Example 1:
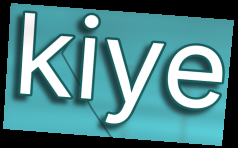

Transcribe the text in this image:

kiye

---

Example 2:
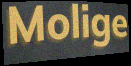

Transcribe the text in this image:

Molige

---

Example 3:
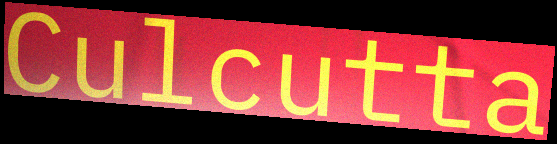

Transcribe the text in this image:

Culcutta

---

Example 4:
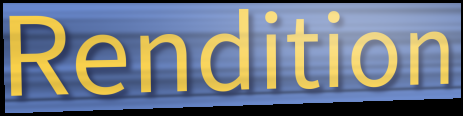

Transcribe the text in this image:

Rendition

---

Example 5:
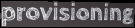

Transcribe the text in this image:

provisioning